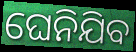
ଘେନିଯିବ